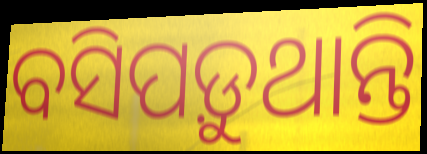
ବସିପଡ଼ୁଥାନ୍ତି